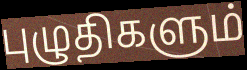
புழுதிகளும்